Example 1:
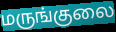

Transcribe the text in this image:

மருங்குலை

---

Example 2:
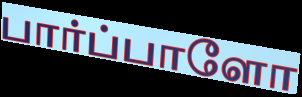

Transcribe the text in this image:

பார்ப்பாளோ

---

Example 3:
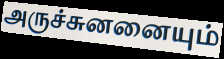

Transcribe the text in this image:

அருச்சுனனையும்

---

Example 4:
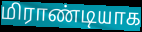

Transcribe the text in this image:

மிராண்டியாக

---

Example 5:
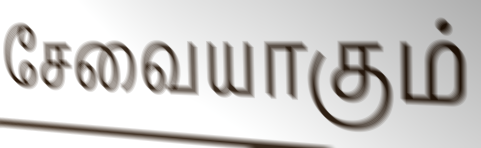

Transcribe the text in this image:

சேவையாகும்